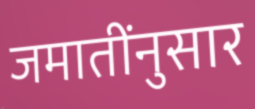
जमातींनुसार